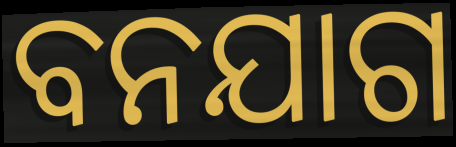
ବନଯାଗ